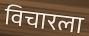
विचारला